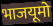
भाजयूमो